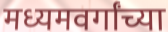
मध्यमवर्गांच्या